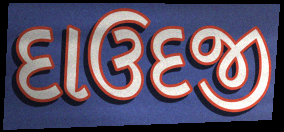
દાઉદજી